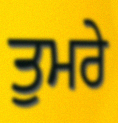
ਤੁਮਰੇ